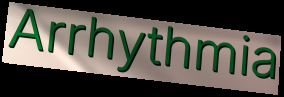
Arrhythmia